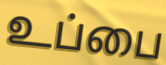
உப்பை